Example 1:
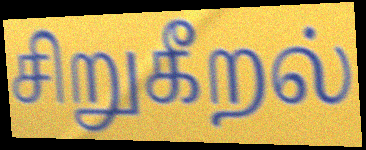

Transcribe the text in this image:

சிறுகீறல்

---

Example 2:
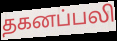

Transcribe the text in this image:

தகனப்பலி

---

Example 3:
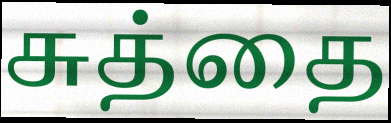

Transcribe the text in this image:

சுத்தை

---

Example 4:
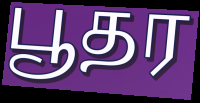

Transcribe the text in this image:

பூதர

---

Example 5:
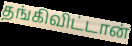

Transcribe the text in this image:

தங்கிவிட்டான்